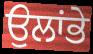
ਉਲਾਂਭੇ